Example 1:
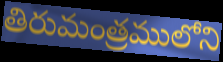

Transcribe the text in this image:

తిరుమంత్రములోని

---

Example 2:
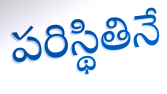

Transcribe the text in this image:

పరిస్థితినే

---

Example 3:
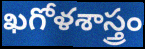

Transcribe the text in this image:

ఖగోళశాస్త్రం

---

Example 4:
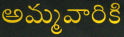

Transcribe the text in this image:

అమ్మవారికి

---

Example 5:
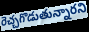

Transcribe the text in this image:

రెచ్చగొడుతున్నారని